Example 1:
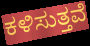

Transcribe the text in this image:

ಕಳಿಸುತ್ತವೆ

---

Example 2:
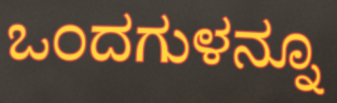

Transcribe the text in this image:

ಒಂದಗುಳನ್ನೂ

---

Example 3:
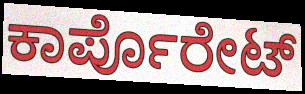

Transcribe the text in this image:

ಕಾರ್ಪೊರೇಟ್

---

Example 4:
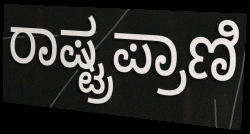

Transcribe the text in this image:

ರಾಷ್ಟ್ರಪ್ರಾಣಿ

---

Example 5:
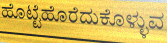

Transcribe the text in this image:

ಹೊಟ್ಟೆಹೊರೆದುಕೊಳ್ಳುವ